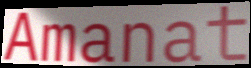
Amanat